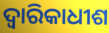
ଦ୍ୱାରିକାଧୀଶ